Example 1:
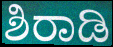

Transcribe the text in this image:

ಶಿರಾಡಿ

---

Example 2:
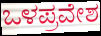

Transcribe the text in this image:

ಒಳಪ್ರವೇಶ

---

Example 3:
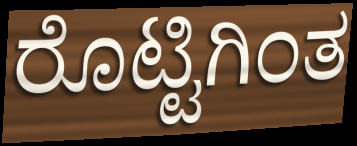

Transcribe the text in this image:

ರೊಟ್ಟಿಗಿಂತ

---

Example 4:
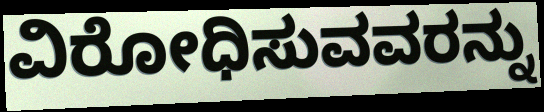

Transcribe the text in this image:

ವಿರೋಧಿಸುವವರನ್ನು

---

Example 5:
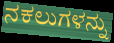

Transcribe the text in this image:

ನಕಲುಗಳನ್ನು